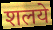
शलये